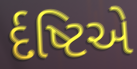
ર્દષ્ટિએ